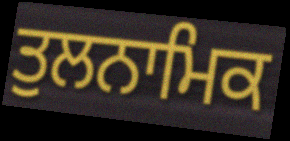
ਤੁਲਨਾਮਿਕ